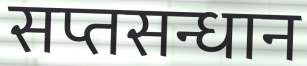
सप्तसन्धान